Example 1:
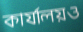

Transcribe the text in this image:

কার্যালয়ও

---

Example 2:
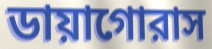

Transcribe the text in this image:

ডায়াগোরাস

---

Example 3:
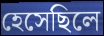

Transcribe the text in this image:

হেসেছিলে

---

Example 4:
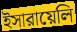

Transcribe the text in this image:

ইসারায়েলি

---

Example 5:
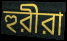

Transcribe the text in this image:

হুরীরা